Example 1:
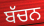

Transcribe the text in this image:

ਬੱਚਨ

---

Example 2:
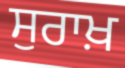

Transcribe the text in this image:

ਸੁਰਾਖ਼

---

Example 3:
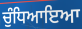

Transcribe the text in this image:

ਚੁੰਧਿਆਇਆ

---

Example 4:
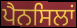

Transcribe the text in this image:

ਪੈਨਸਿਲਾਂ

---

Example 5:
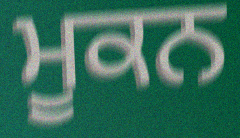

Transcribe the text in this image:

ਮੂਕਨ